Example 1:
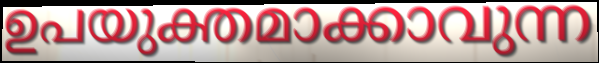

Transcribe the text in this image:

ഉപയുക്തമാക്കാവുന്ന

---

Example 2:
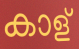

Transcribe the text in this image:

കാള്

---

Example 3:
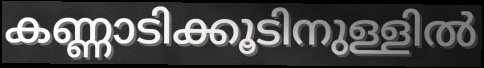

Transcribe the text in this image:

കണ്ണാടിക്കൂടിനുള്ളിൽ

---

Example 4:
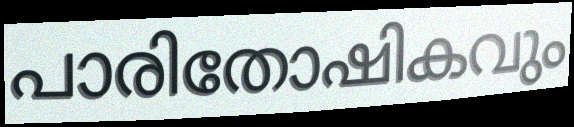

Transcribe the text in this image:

പാരിതോഷികവും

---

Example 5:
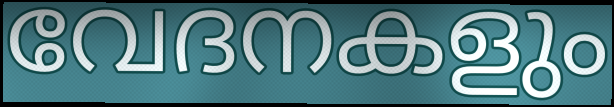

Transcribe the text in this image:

വേദനകളും